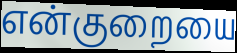
என்குறையை